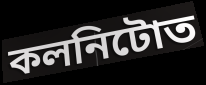
কলনিটোত